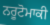
ਨਰੂਟੋਮਾਕੀ